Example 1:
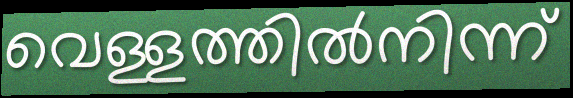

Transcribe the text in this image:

വെള്ളത്തിൽനിന്ന്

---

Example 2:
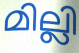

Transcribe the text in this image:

മില്ലി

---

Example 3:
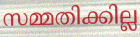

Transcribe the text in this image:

സമ്മതിക്കില്ല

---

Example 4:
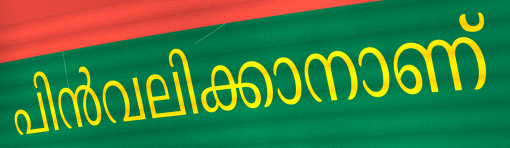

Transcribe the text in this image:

പിൻവലിക്കാനാണ്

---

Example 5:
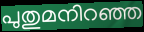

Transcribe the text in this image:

പുതുമനിറഞ്ഞ